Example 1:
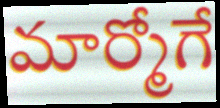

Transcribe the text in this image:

మార్మోగే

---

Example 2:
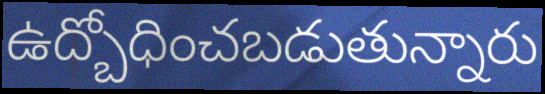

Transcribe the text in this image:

ఉద్బోధించబడుతున్నారు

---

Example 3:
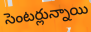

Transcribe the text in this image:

సెంటర్లున్నాయి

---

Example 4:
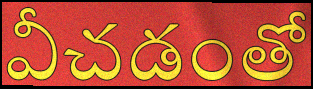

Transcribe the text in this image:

వీచడంతో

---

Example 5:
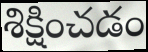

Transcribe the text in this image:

శిక్షించడం